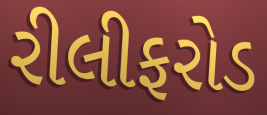
રીલીફરોડ